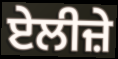
ਏਲੀਜ਼ੇ